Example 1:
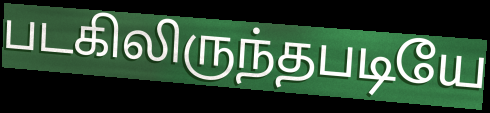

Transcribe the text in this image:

படகிலிருந்தபடியே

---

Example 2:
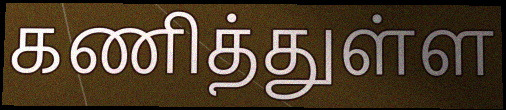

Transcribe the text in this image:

கணித்துள்ள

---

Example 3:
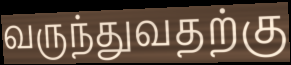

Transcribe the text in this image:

வருந்துவதற்கு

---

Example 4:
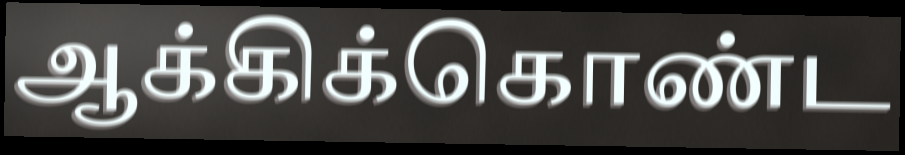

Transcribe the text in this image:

ஆக்கிக்கொண்ட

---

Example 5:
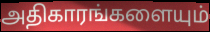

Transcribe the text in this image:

அதிகாரங்களையும்